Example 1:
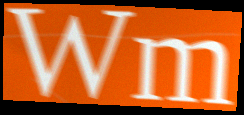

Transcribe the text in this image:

Wm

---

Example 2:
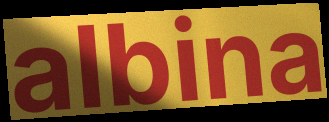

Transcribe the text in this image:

albina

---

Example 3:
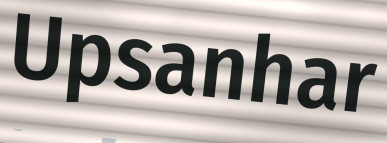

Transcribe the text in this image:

Upsanhar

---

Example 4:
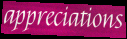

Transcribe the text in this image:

appreciations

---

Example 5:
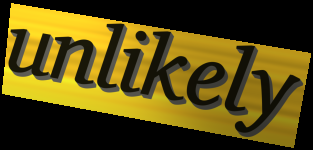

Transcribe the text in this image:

unlikely